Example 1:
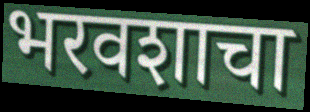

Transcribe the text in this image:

भरवशाचा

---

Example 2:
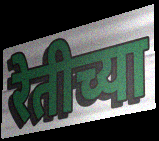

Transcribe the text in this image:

रेतीच्या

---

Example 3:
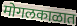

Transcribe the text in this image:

मोगलकाळात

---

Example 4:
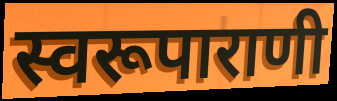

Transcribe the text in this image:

स्वरूपाराणी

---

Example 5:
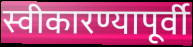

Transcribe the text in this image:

स्वीकारण्यापूर्वी